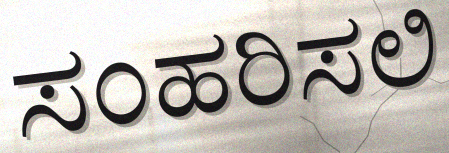
ಸಂಹರಿಸಲಿ